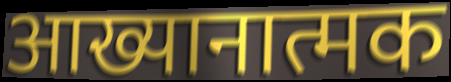
आख्यानात्मक